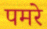
पमरे